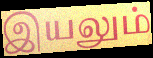
இயலும்